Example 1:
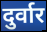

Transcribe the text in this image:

दुर्वार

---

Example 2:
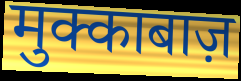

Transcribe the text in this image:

मुक्काबाज़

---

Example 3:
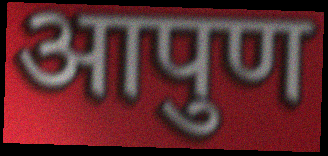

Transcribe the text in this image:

आपुण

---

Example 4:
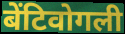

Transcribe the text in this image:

बेंटिवोगली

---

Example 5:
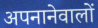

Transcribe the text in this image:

अपनानेवालों